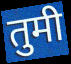
तुमी